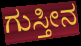
ಗುಸ್ತೀನ